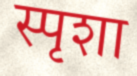
स्पृशा